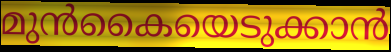
മുൻകൈയെടുക്കാൻ